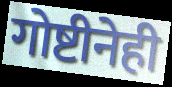
गोष्टीनेही